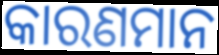
କାରଣମାନ